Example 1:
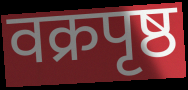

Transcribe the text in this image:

वक्रपृष्ठ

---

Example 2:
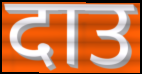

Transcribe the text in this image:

दाउ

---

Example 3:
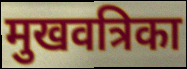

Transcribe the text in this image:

मुखवत्रिका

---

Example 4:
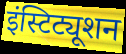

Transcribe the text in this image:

इंस्टिट्यूशन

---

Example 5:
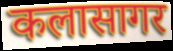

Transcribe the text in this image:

कलासागर